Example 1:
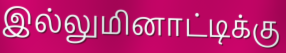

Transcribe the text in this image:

இல்லுமினாட்டிக்கு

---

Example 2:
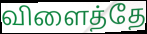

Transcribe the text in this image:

விளைத்தே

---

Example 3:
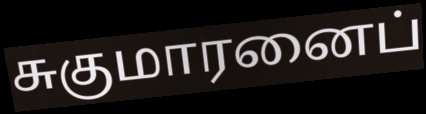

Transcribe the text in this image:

சுகுமாரனைப்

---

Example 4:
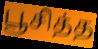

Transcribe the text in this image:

பூசித்த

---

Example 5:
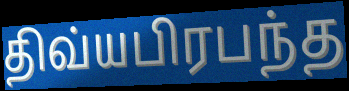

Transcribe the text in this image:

திவ்யபிரபந்த